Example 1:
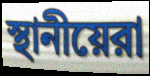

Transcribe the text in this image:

স্থানীয়েরা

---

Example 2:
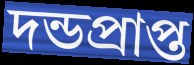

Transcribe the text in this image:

দন্ডপ্রাপ্ত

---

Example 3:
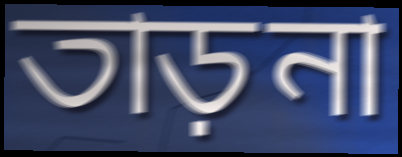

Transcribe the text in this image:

তাড়না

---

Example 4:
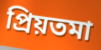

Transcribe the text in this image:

প্রিয়তমা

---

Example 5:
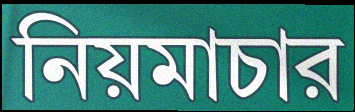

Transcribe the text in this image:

নিয়মাচার